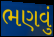
ભણવું